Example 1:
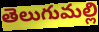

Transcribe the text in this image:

తెలుగుమల్లి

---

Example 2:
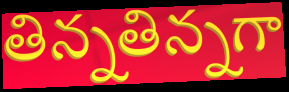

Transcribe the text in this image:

తిన్నతిన్నగా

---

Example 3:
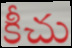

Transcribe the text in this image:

కీచు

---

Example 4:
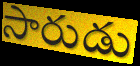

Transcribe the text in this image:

సారుడు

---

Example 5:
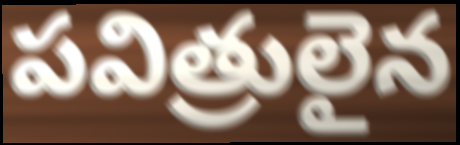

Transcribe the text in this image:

పవిత్రులైన